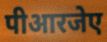
पीआरजेए